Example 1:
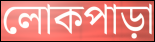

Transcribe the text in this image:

লোকপাড়া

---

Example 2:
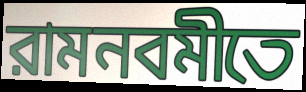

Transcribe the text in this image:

রামনবমীতে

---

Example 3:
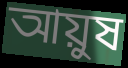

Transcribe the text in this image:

আয়ুষ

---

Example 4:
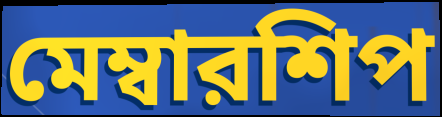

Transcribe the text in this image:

মেম্বারশিপ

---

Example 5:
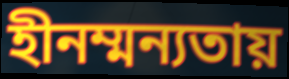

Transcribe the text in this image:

হীনম্মন্যতায়